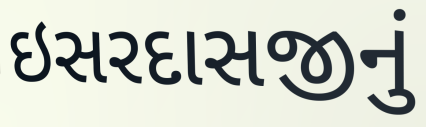
ઇસરદાસજીનું